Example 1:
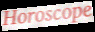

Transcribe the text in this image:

Horoscope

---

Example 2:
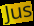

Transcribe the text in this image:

Jus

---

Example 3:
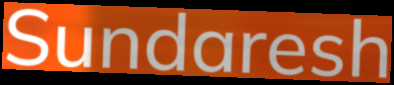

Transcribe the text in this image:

Sundaresh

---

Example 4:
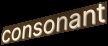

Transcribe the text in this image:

consonant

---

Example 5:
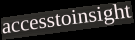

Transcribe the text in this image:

accesstoinsight